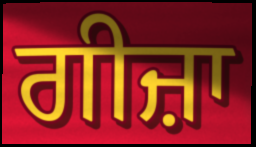
ਗੀਜ਼ਾ